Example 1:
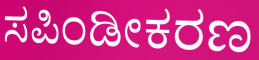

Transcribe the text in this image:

ಸಪಿಂಡೀಕರಣ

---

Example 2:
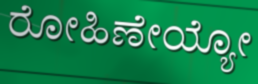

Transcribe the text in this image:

ರೋಹಿಣೇಯ್ಯೋ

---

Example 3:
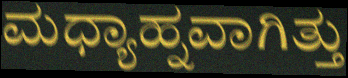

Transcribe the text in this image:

ಮಧ್ಯಾಹ್ನವಾಗಿತ್ತು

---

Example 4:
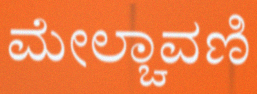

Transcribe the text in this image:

ಮೇಲ್ಚಾವಣಿ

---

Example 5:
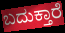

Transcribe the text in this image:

ಬದುಕ್ತಾರೆ